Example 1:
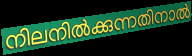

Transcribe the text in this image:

നിലനിൽക്കുന്നതിനാൽ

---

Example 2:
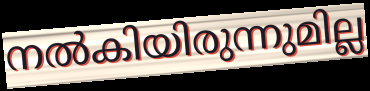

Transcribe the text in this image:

നൽകിയിരുന്നുമില്ല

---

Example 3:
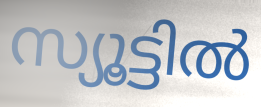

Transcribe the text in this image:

സ്യൂട്ടിൽ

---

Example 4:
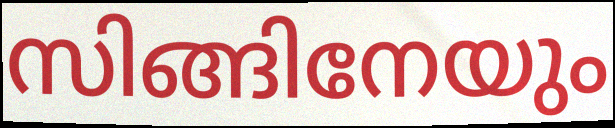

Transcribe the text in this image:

സിങ്ങിനേയും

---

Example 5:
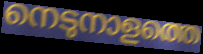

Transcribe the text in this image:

നെടുനാളത്തെ